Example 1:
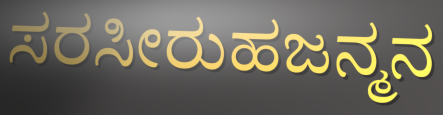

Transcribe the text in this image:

ಸರಸೀರುಹಜನ್ಮನ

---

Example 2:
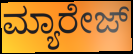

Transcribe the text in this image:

ಮ್ಯಾರೇಜ್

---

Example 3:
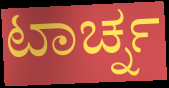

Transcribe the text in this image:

ಟಾರ್ಚ್ನ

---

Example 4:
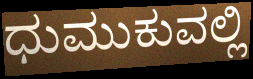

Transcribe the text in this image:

ಧುಮುಕುವಲ್ಲಿ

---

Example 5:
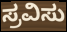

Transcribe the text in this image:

ಸ್ರವಿಸು